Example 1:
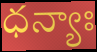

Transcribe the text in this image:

ధన్యాః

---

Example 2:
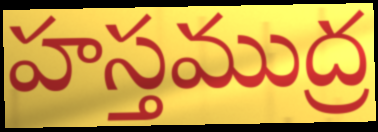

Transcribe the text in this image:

హస్తముద్ర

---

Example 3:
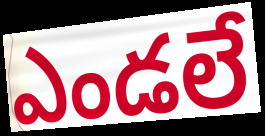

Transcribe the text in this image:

ఎండలే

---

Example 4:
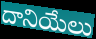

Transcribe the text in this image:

దానియేలు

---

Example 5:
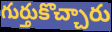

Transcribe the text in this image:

గుర్తుకొచ్చారు